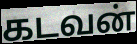
கடவன்